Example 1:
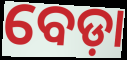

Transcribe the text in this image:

ବେଡ଼ା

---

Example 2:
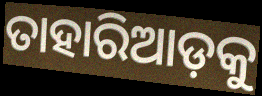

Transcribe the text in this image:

ତାହାରିଆଡ଼କୁ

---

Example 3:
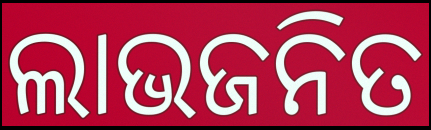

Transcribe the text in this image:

ଲାଭଜନିତ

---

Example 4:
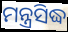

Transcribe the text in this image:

ମନ୍ତ୍ରସିଦ୍ଧ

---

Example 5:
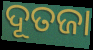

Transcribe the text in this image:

ଦୂତଜା